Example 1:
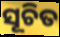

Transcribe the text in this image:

ସୂଚିତ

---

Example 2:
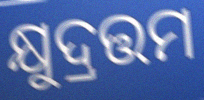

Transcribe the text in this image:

କ୍ଷୁଦ୍ରତ୍ତମ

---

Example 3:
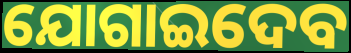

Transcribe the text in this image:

ଯୋଗାଇଦେବ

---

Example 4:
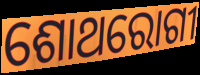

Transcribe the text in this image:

ଶୋଥରୋଗୀ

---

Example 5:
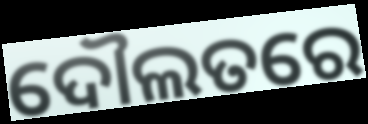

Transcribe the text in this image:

ଦୌଲତରେ